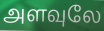
அளவுலே